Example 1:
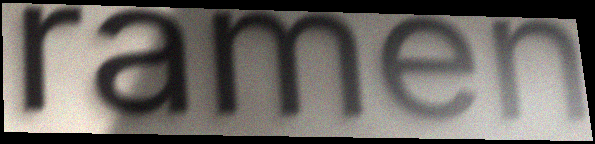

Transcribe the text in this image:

ramen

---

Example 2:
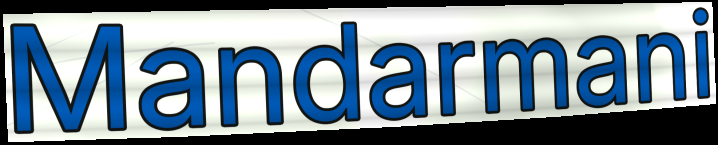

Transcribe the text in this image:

Mandarmani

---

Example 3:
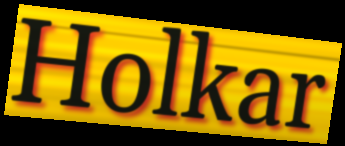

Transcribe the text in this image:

Holkar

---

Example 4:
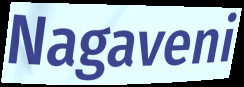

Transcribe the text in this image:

Nagaveni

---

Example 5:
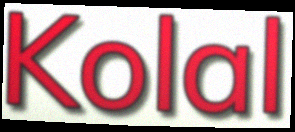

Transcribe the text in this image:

Kolal